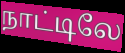
நாட்டிலே